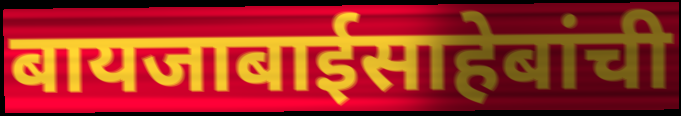
बायजाबाईसाहेबांची